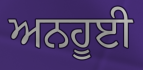
ਅਨਹੂਈ